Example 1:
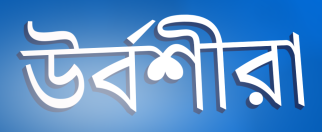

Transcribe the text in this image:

উর্বশীরা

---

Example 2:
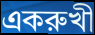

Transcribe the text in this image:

একরুখী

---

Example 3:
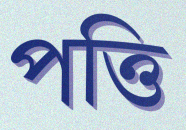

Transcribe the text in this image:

পত্তি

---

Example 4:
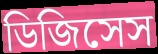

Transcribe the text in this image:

ডিজিসেস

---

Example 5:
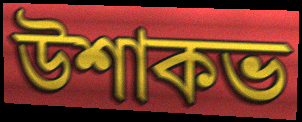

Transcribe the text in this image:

উশাকভ